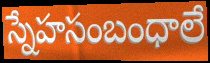
స్నేహసంబంధాలే